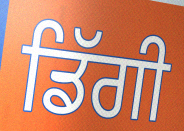
ਡਿੱਗੀ